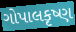
ગોપાલકૃષ્ણ